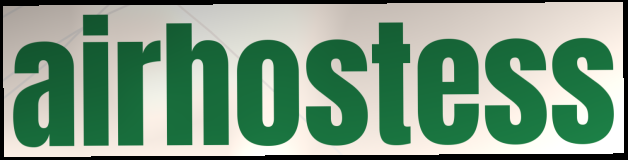
airhostess